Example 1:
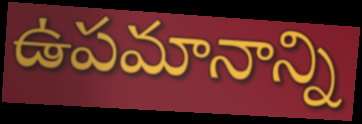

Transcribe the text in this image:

ఉపమానాన్ని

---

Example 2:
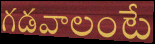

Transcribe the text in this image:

గడవాలంటే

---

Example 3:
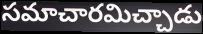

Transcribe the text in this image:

సమాచారమిచ్చాడు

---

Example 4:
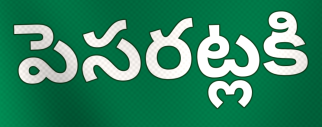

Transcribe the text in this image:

పెసరట్లకి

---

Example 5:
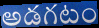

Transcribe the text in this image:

అడగటం